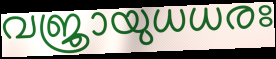
വജ്രായുധധരഃ